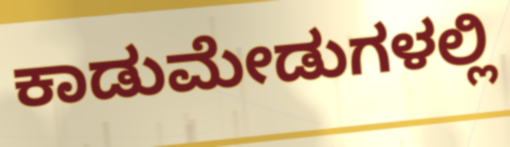
ಕಾಡುಮೇಡುಗಳಲ್ಲಿ